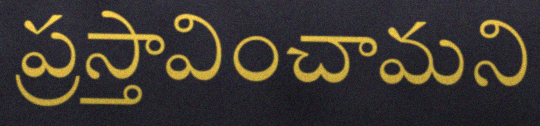
ప్రస్తావించామని